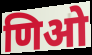
णिओ